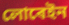
লোৰেইন